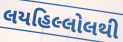
લયહિલ્લોલથી